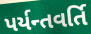
પર્યન્તવર્તિ